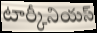
టార్కీనియస్